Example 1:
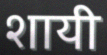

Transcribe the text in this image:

शायी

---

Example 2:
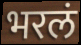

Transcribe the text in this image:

भरलं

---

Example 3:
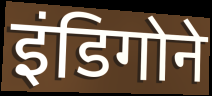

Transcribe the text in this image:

इंडिगोने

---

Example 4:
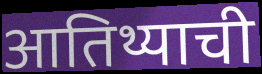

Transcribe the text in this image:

आतिथ्याची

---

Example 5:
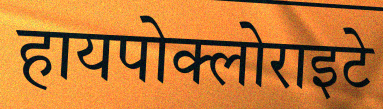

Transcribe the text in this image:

हायपोक्लोराइटे